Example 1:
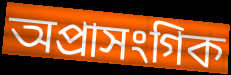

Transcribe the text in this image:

অপ্ৰাসংগিক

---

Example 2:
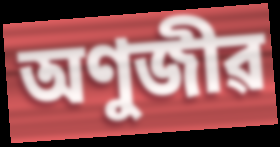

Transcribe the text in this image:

অণুজীৱ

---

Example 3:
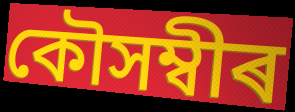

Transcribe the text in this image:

কৌসম্বীৰ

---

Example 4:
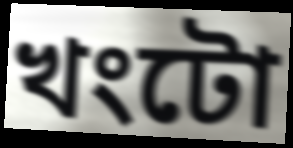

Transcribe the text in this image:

খংটো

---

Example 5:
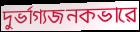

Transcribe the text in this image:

দুৰ্ভাগ্যজনকভাৱে